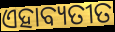
ଏହାବ୍ୟତୀତ